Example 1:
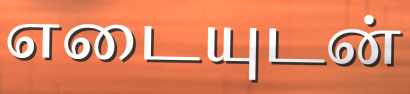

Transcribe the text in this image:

எடையுடன்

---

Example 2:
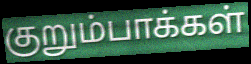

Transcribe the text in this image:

குறும்பாக்கள்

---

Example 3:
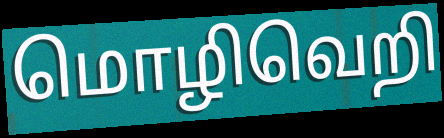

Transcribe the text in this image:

மொழிவெறி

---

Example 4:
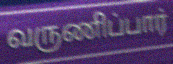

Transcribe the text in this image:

வருணிப்பார்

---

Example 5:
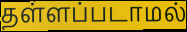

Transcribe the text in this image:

தள்ளப்படாமல்